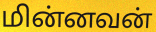
மின்னவன்